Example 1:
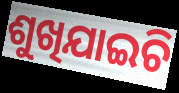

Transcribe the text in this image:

ଶୁଖିଯାଇଚି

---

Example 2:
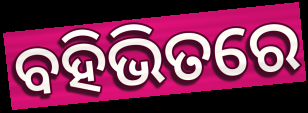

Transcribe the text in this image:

ବହିଭିତରେ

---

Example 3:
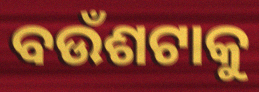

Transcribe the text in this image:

ବଉଁଶଟାକୁ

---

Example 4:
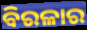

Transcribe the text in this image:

ବିରଳାର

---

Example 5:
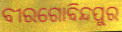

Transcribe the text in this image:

ବୀରଗୋବିନ୍ଦପୁର